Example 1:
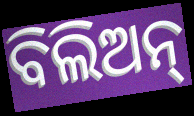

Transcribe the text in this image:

ବିଲିଅନ୍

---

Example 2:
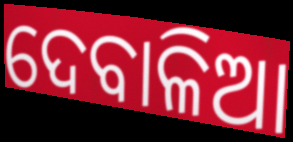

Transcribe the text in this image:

ଦେବାଳିଆ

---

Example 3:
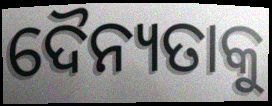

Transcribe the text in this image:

ଦୈନ୍ୟତାକୁ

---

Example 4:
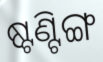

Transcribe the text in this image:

ଷ୍ଟଣ୍ଟିଙ୍ଗ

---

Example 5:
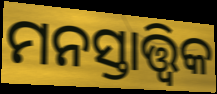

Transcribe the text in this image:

ମନସ୍ତାତ୍ତ୍ୱିକ